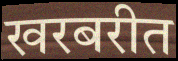
खरबरीत